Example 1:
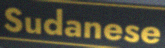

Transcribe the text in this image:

Sudanese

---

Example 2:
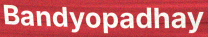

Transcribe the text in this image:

Bandyopadhay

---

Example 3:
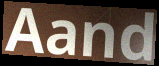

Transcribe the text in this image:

Aand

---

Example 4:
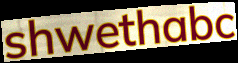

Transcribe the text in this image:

shwethabc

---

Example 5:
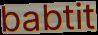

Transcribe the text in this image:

babtit